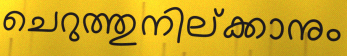
ചെറുത്തുനില്ക്കാനും